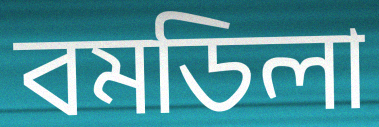
বমডিলা